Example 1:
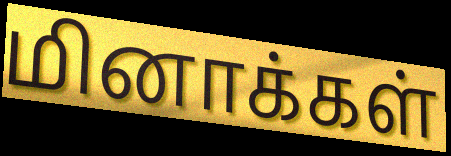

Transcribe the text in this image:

மினாக்கள்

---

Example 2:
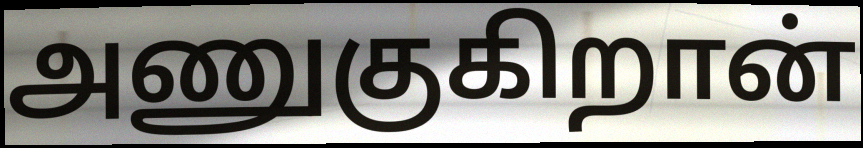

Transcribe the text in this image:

அணுகுகிறான்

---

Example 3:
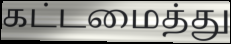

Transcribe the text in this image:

கட்டமைத்து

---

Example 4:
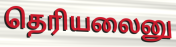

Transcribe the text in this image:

தெரியலைனு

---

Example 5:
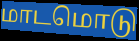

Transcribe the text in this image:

மாடமொடு